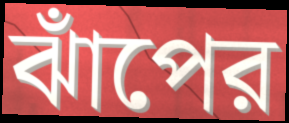
ঝাঁপের